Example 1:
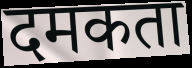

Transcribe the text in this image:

दमकता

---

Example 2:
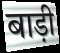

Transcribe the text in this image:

बाड़ी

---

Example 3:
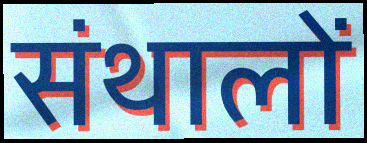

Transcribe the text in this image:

संथालों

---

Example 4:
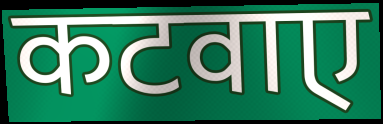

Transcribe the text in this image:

कटवाए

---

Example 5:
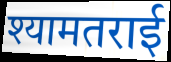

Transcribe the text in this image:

श्यामतराई